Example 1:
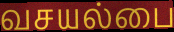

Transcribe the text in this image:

வசயல்பை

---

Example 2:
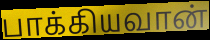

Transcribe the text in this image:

பாக்கியவான்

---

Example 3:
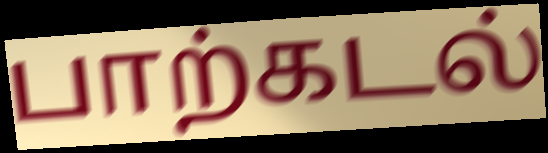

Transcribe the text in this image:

பாற்கடல்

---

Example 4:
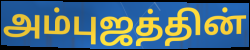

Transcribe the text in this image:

அம்புஜத்தின்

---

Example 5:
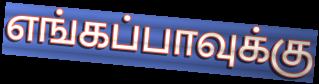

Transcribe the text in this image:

எங்கப்பாவுக்கு